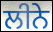
ਲੀਨੇ